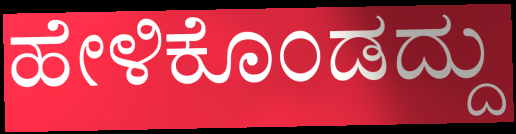
ಹೇಳಿಕೊಂಡದ್ದು